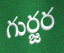
గుర్జర